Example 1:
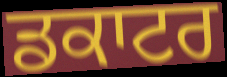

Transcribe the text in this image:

ਡਕਾਟਰ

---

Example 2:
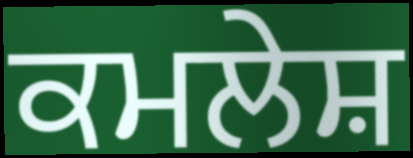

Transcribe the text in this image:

ਕਮਲੇਸ਼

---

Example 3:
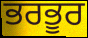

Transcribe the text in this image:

ਭਰਭੂਰ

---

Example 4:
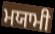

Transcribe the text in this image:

ਮਯਾਮੀ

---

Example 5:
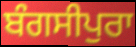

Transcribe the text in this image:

ਬੰਗਸੀਪੁਰਾ